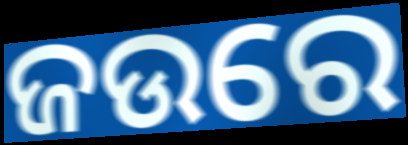
ଜଉରେ